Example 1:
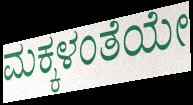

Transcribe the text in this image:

ಮಕ್ಕಳಂತೆಯೇ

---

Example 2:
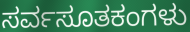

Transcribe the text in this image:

ಸರ್ವಸೂತಕಂಗಳು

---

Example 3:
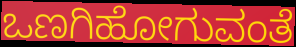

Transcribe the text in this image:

ಒಣಗಿಹೋಗುವಂತೆ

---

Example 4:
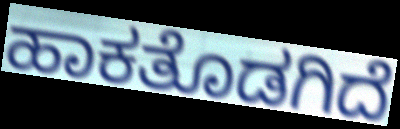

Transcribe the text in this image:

ಹಾಕತೊಡಗಿದೆ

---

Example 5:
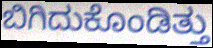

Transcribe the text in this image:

ಬಿಗಿದುಕೊಂಡಿತ್ತು